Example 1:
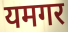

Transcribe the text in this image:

यमगर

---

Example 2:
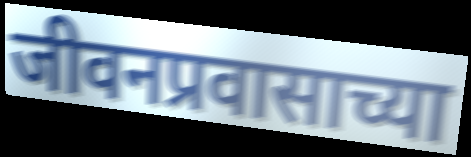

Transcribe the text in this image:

जीवनप्रवासाच्या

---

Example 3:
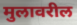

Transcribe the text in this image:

मुलावरील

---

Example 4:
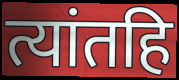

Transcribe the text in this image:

त्यांतहि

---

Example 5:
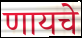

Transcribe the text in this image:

णायचे